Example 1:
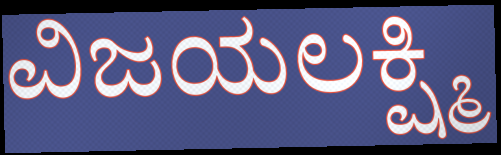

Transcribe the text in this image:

ವಿಜಯಲಕ್ಷ್ಮಿ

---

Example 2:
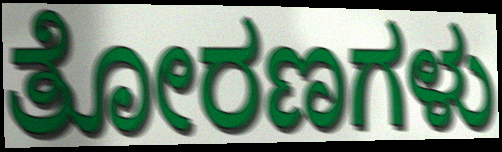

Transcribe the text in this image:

ತೋರಣಗಳು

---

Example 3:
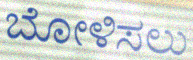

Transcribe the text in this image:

ಬೋಳಿಸಲು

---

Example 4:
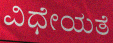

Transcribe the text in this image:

ವಿಧೇಯತೆ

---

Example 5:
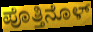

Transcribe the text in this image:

ಪೊತ್ತಿನೊಳ್